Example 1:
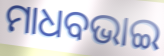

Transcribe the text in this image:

ମାଧବଭାଇ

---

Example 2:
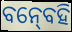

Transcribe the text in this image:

ବନ୍‍ବେହି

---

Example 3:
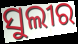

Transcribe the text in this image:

ସୁଲୀର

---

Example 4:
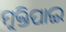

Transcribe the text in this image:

ମୁକ୍ତିପାଇ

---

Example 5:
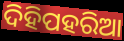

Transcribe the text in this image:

ଦିହିପହରିଆ